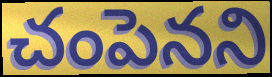
చంపెనని